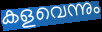
കളവെന്നും